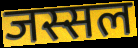
जस्सल